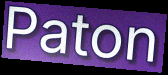
Paton